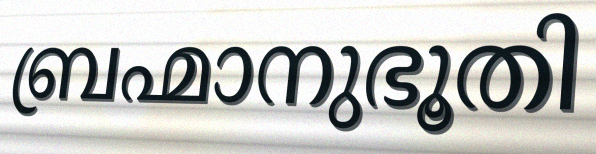
ബ്രഹ്മാനുഭൂതി